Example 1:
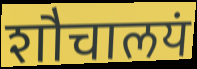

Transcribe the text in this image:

शौचालयं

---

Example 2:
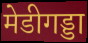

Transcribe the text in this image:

मेडीगड्डा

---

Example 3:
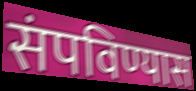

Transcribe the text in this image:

संपविण्यास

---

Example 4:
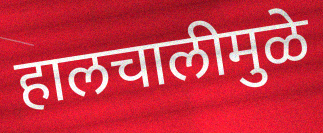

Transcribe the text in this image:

हालचालीमुळे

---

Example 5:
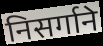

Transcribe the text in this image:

निसर्गाने